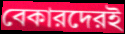
বেকারদেরই